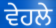
ਵੇਹਲੇ